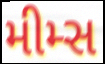
મીમ્સ